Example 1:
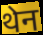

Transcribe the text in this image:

थेन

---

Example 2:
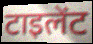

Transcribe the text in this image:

टाइलेंट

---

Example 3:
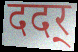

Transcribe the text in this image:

ददर्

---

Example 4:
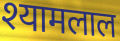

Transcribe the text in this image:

श्यामलाल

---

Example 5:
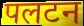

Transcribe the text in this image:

पलटन